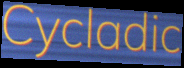
Cycladic